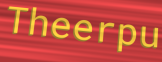
Theerpu